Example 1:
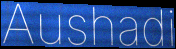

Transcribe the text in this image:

Aushadi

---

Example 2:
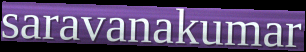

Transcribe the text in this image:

saravanakumar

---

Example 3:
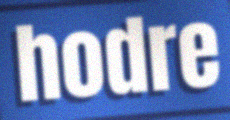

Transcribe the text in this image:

hodre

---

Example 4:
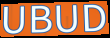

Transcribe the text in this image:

UBUD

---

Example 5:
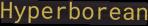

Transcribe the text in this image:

Hyperborean